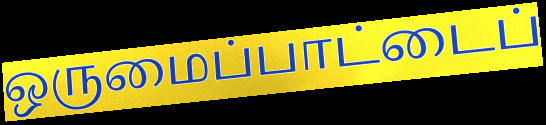
ஒருமைப்பாட்டைப்